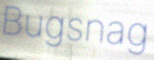
Bugsnag